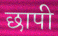
छापी